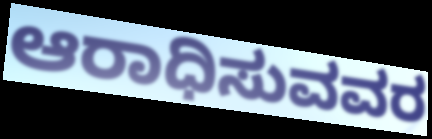
ಆರಾಧಿಸುವವರ